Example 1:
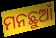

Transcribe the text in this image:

ମନଛୁଆଁ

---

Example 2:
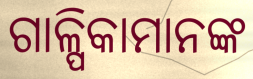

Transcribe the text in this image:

ଗାଳ୍ପିକାମାନଙ୍କ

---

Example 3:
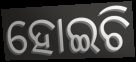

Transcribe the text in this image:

ହୋଇଚି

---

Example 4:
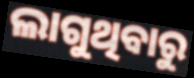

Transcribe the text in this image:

ଲାଗୁଥିବାରୁ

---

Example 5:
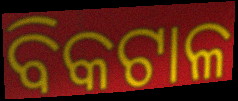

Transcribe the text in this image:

ବିକଟାଳ